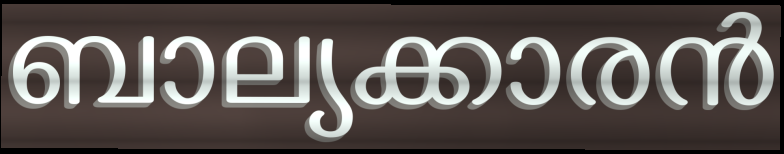
ബാല്യക്കാരൻ